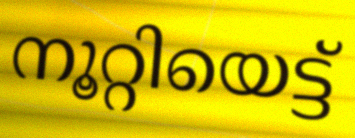
നൂറ്റിയെട്ട്